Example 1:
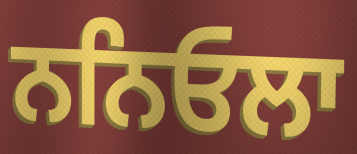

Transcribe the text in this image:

ਨਨਿਓਲਾ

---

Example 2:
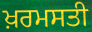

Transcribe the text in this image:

ਖ਼ਰਮਸਤੀ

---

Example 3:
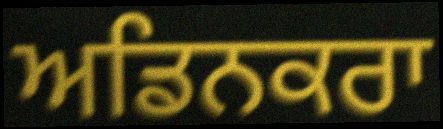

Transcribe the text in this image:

ਅਡਿਨਕਰਾ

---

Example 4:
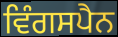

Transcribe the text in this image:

ਵਿੰਗਸਪੈਨ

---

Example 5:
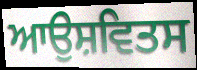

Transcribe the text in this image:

ਆਉਸ਼ਵਿਤਸ